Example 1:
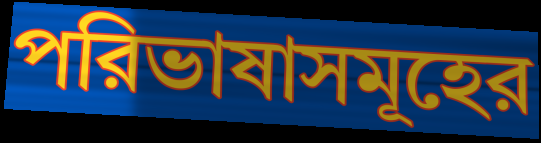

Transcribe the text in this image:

পরিভাষাসমূহের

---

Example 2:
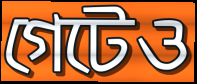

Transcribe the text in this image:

গেটেও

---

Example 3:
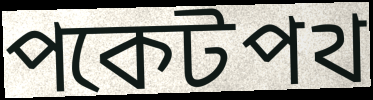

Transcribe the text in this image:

পকেটপথ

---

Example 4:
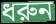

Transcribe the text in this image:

ধরুন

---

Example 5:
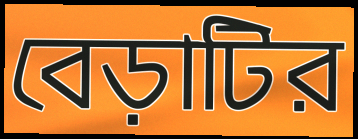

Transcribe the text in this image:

বেড়াটির